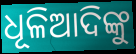
ଧୂଳିଆଦିଙ୍କୁ